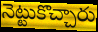
నెట్టుకొచ్చారు